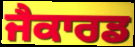
ਜੈਕਾਰਡ